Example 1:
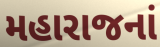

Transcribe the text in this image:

મહારાજનાં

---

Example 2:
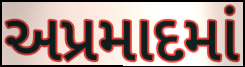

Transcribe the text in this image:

અપ્રમાદમાં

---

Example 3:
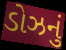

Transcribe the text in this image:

ડોઝનું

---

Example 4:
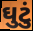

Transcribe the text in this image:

ઘુટું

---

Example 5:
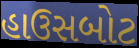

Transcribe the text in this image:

હાઉસબોટ